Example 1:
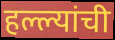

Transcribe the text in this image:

हल्ल्यांची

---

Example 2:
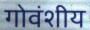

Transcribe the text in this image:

गोवंशीय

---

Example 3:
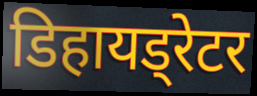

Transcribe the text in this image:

डिहायड्रेटर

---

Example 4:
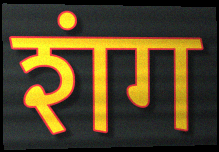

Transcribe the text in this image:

शंग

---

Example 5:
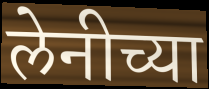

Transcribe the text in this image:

लेनीच्या